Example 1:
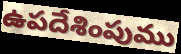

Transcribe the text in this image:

ఉపదేశింపుము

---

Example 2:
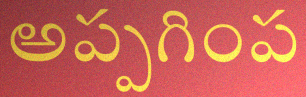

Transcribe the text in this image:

అప్పగింప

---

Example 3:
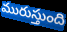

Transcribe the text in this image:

మురుస్తుంది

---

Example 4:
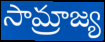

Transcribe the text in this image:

సామ్రాజ్య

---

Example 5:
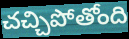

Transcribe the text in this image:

చచ్చిపోతోంది